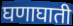
घणाघाती